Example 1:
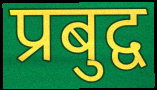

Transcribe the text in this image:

प्रबुद्व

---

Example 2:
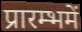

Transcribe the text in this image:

प्रारम्भमें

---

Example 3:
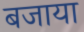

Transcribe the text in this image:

बजाया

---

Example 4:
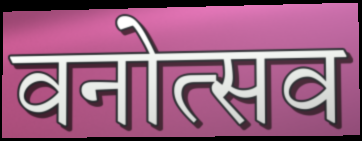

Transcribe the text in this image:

वनोत्सव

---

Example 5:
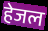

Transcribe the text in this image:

हेजल